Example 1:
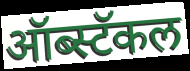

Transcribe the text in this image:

ऑब्स्टॅकल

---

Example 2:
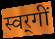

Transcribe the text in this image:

स्वर्गीं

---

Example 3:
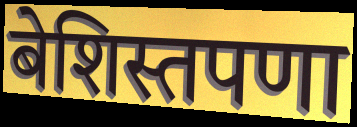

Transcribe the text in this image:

बेशिस्तपणा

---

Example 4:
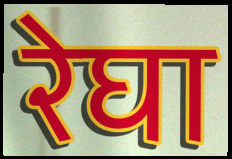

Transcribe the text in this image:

रेघा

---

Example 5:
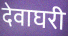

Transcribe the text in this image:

देवाघरी